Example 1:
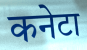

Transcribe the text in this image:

कनेटा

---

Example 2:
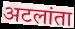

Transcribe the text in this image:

अटलांता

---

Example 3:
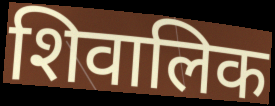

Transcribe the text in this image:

शिवालिक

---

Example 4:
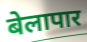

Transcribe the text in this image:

बेलापार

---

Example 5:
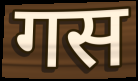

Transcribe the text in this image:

गस